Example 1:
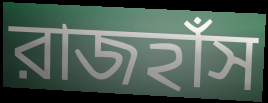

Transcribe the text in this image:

রাজহাঁস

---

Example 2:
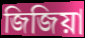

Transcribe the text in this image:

জিজিয়া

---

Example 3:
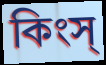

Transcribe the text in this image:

কিংস্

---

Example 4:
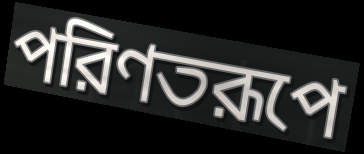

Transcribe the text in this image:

পরিণতরূপে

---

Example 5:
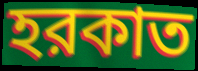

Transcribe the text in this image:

হরকাত